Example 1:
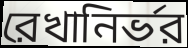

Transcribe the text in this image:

রেখানির্ভর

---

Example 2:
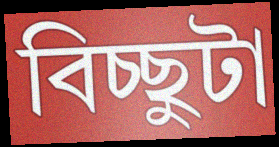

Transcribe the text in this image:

বিচ্ছুটা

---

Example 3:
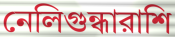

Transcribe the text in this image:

নেলিগুন্ধারাশি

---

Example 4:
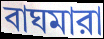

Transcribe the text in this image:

বাঘমারা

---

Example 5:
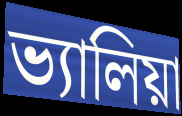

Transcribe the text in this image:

ভ্যালিয়া